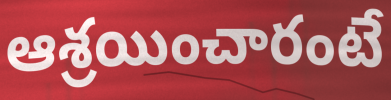
ఆశ్రయించారంటే